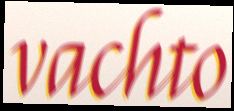
vachto